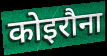
कोइरौना